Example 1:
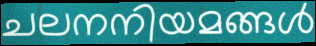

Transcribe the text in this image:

ചലനനിയമങ്ങൾ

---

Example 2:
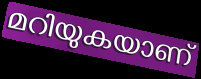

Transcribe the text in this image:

മറിയുകയാണ്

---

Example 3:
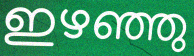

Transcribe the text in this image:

ഇഴഞ്ഞു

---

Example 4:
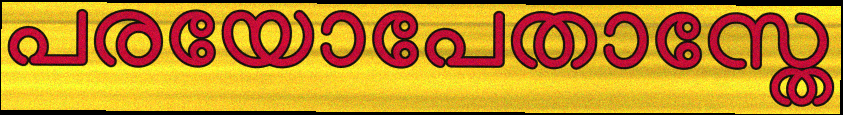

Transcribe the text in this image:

പരയോപേതാസ്തേ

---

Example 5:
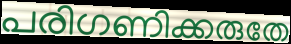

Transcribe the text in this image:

പരിഗണിക്കരുതേ